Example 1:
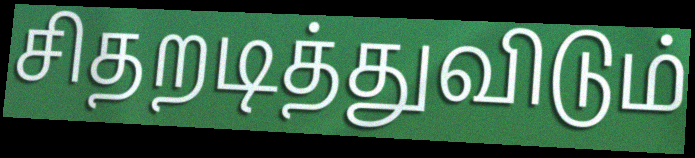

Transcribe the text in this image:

சிதறடித்துவிடும்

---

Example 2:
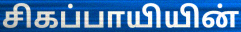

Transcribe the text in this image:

சிகப்பாயியின்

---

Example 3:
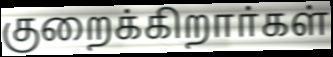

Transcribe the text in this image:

குறைக்கிறார்கள்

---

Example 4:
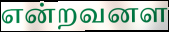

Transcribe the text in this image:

என்றவனள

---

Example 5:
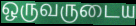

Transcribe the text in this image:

ஒருவருடைய